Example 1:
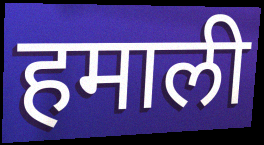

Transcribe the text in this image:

हमाली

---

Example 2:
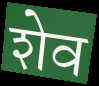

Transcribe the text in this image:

शेव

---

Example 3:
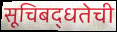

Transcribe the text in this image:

सूचिबद्धतेची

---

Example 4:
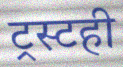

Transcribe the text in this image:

ट्रस्टही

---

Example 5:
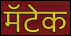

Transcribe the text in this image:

मॅटेक